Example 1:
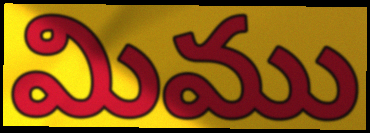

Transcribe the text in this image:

మిము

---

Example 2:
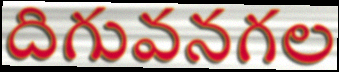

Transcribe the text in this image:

దిగువనగల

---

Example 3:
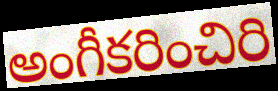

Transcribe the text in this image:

అంగీకరించిరి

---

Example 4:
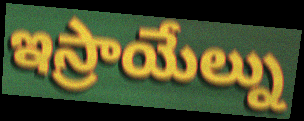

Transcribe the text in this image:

ఇస్రాయేల్ను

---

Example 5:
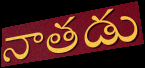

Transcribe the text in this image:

నాతడు